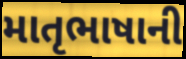
માતૃભાષાની